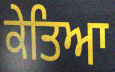
ਕੇਤਿਆ